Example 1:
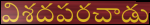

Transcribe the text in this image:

విశదపరచాడు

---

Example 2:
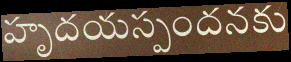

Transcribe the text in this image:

హృదయస్పందనకు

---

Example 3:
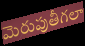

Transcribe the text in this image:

మెరుపుతీగలా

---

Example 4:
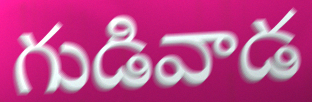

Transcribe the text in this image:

గుడివాడ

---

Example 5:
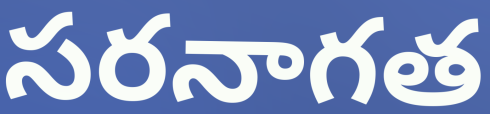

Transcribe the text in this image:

సరనాగత